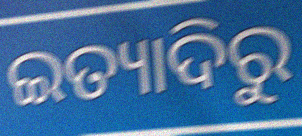
ଇତ୍ୟାଦିରୁ